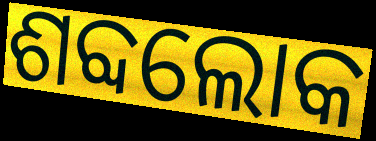
ଶବ୍ଦଲୋକ